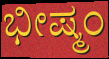
ಭೀಷ್ಮಂ